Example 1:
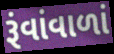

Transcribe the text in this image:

રૂંવાંવાળાં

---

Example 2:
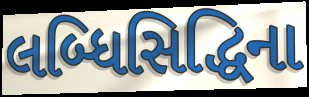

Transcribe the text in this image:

લબ્ધિસિદ્ધિના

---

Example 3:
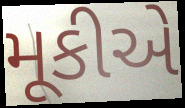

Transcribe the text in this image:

મૂકીએ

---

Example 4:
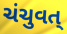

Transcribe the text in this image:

ચંચુવત્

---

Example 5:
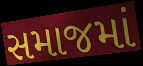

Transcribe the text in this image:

સમાજમાં